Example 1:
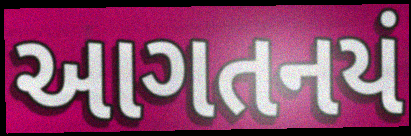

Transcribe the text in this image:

આગતનયં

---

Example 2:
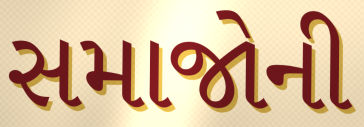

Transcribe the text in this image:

સમાજોની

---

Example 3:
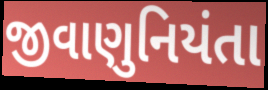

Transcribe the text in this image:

જીવાણુનિયંતા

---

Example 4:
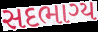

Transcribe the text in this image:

સદભાગ્ય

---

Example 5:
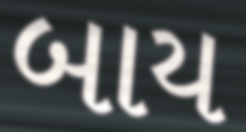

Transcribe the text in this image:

બાય